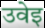
उवेइ